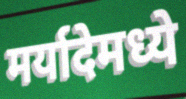
मर्यादेमध्ये